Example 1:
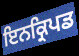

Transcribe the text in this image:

ਇਨਕ੍ਰਿਪਡ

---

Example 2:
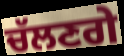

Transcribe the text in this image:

ਚੱਲਣਗੇ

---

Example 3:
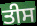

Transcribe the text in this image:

ਤੀਸ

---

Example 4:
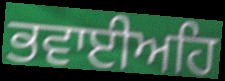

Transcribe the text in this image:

ਭਵਾਈਅਹਿ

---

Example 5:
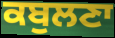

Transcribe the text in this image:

ਕਬੁਲਣਾ